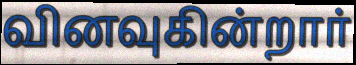
வினவுகின்றார்